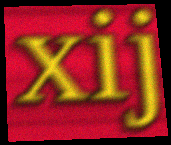
xij